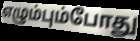
எழும்பும்போது